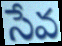
సేవ